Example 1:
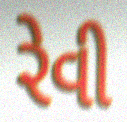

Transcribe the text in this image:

રેવી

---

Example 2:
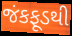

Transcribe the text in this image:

જંકફૂડથી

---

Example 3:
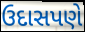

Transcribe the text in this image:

ઉદાસપણે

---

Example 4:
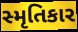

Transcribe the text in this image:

સ્મૃતિકાર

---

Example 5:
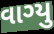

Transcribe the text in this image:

વાગ્યુ